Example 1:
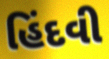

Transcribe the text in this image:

હિંદવી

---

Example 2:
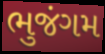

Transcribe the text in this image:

ભુજંગમ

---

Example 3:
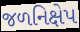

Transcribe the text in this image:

જળનિક્ષેપ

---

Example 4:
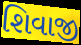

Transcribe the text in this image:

શિવાજી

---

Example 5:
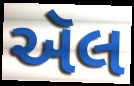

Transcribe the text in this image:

ઍલ